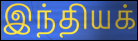
இந்தியக்